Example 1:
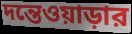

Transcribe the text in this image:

দন্তেওয়াড়ার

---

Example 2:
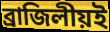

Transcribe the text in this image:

ব্রাজিলীয়ই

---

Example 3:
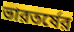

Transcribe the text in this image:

ভারতর্ষের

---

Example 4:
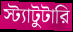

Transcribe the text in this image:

স্ট্যাটুটারি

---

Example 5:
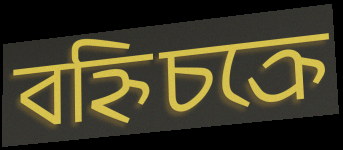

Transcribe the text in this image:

বহ্নিচক্রে